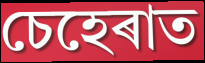
চেহেৰাত